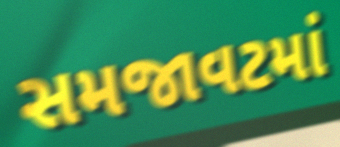
સમજાવટમાં